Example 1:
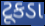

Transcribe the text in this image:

ટૂકડા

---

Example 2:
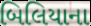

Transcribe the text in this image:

બિલિયાના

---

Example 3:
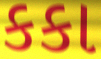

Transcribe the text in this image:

કકા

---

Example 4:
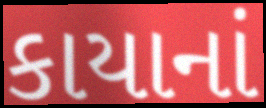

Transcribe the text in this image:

કાયાનાં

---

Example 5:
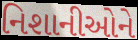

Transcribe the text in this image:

નિશાનીઓને